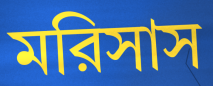
মরিসাস